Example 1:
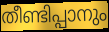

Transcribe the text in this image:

തീണ്ടിപ്പാനും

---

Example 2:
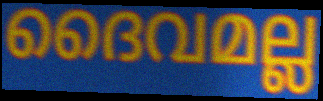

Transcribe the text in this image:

ദൈവമല്ല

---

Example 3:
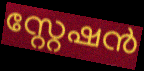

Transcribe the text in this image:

സ്റ്റേഷൻ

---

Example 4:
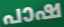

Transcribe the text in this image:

പാഷ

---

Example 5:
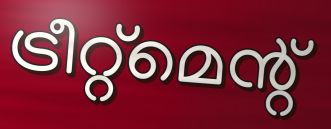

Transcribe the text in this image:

ട്രീറ്റ്മെന്റ്